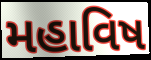
મહાવિષ